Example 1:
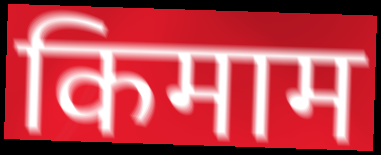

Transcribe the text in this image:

किमाम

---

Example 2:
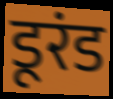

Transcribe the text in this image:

डूरंड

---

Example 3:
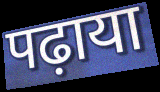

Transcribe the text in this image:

पढ़ाया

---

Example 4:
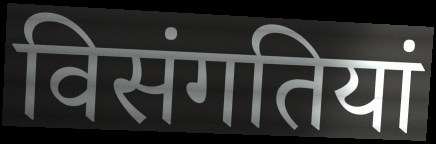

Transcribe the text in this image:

विसंगतियां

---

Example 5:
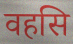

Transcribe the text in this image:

वहसि